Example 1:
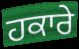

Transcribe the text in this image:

ਹਕਾਰੇ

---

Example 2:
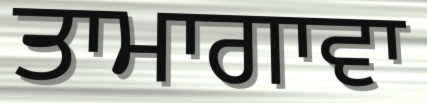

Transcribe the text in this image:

ਤਾਮਾਗਾਵਾ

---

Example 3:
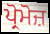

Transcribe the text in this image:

ਪ੍ਰੋਮੋਜ਼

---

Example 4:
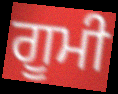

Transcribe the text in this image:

ਗੂਮੀ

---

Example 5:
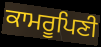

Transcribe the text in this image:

ਕਾਮਰੂਪਿਣੀ